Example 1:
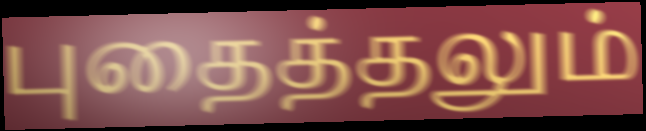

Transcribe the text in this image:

புதைத்தலும்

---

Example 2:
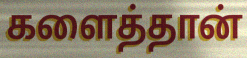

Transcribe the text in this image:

களைத்தான்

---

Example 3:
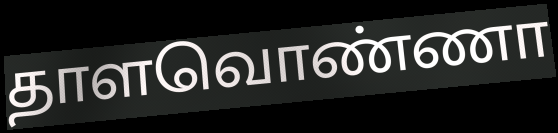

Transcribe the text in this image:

தாளவொண்ணா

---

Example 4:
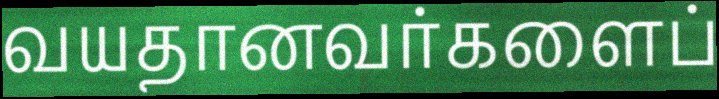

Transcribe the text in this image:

வயதானவர்களைப்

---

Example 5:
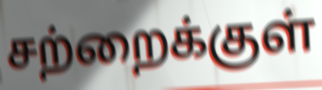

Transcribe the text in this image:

சற்றைக்குள்